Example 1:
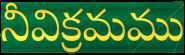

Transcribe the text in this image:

నీవిక్రమము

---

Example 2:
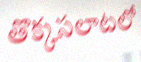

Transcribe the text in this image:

తొక్కసలాటలో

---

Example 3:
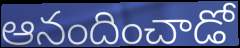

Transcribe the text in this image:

ఆనందించాడో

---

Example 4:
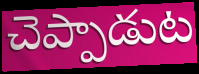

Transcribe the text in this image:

చెప్పాడుట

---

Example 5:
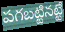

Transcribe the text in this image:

పగబట్టినట్టే